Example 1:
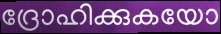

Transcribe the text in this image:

ദ്രോഹിക്കുകയോ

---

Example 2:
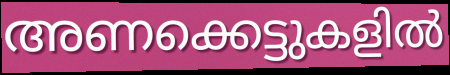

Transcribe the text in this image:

അണക്കെട്ടുകളിൽ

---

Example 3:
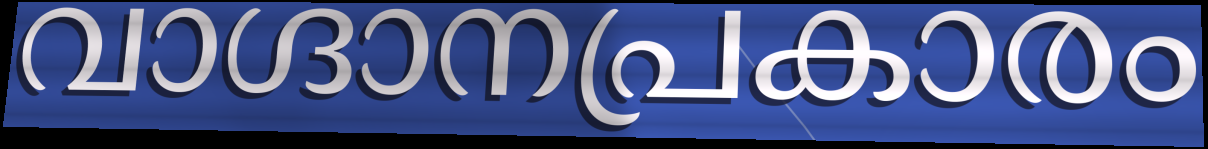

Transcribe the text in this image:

വാഗ്ദാനപ്രകാരം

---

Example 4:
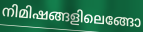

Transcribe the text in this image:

നിമിഷങ്ങളിലെങ്ങോ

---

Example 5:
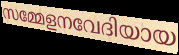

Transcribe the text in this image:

സമ്മേളനവേദിയായ